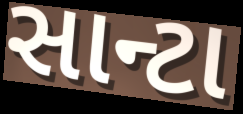
સાન્ટા